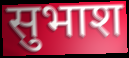
सुभाश